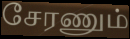
சேரணும்